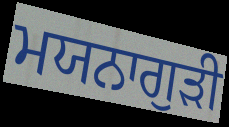
ਮਯਨਾਗੁੜੀ